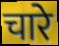
चारे